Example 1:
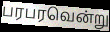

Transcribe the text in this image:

பரபரவென்று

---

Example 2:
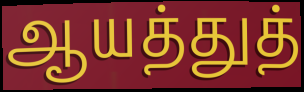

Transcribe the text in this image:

ஆயத்துத்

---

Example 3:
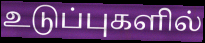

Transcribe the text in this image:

உடுப்புகளில்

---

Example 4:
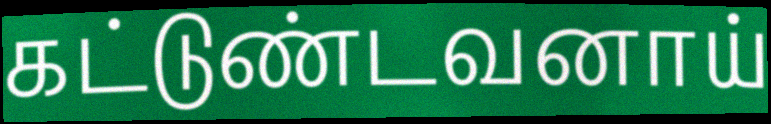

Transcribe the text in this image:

கட்டுண்டவனாய்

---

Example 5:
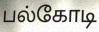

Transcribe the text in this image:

பல்கோடி